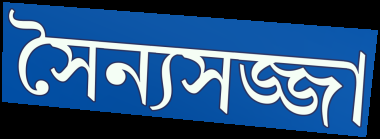
সৈন্যসজ্জা